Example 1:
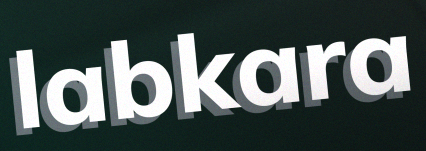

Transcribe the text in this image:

labkara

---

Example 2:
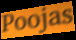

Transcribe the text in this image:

Poojas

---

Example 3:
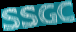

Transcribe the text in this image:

SSGC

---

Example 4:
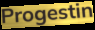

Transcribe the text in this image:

Progestin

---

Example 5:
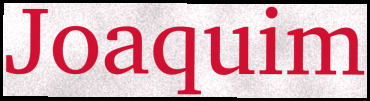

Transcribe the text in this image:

Joaquim